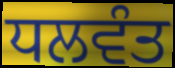
ਧਲਵੰਤ